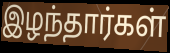
இழந்தார்கள்